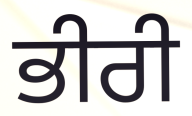
ਭੀਰੀ